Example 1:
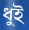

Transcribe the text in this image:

ধুই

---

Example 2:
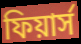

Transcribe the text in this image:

ফিয়ার্স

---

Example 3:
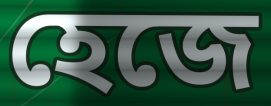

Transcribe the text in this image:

হেজে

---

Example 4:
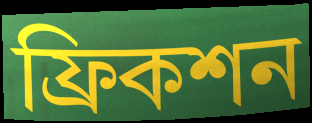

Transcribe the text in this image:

ফ্রিকশন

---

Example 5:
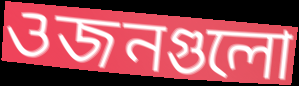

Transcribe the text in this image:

ওজনগুলো